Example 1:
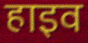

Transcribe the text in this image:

हाइव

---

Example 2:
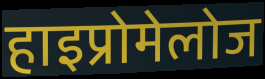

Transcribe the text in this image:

हाइप्रोमेलोज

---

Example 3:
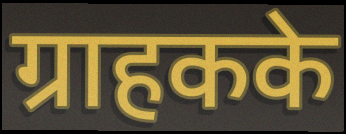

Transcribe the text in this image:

ग्राहकके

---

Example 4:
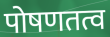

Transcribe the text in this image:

पोषणतत्व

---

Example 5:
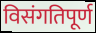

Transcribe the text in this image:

विसंगतिपूर्ण